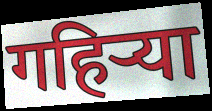
गहिऱ्या